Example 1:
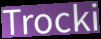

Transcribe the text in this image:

Trocki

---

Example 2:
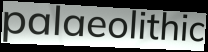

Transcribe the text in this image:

palaeolithic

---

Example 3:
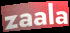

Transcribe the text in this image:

zaala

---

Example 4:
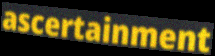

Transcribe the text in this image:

ascertainment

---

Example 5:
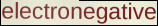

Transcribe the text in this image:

electronegative